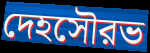
দেহসৌরভ